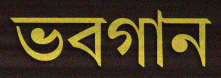
ভবগান